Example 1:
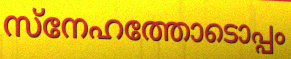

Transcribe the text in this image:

സ്നേഹത്തോടൊപ്പം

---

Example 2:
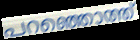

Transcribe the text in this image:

പറഞ്ഞൊത്ത്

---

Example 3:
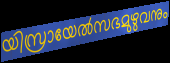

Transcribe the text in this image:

യിസ്രായേൽസഭമുഴുവനും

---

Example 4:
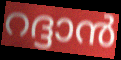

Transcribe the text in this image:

റദ്ദാൻ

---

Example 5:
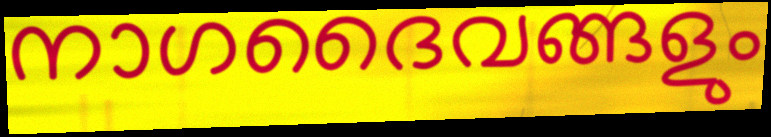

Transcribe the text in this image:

നാഗദൈവങ്ങളും